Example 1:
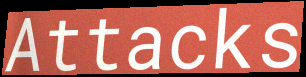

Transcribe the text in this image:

Attacks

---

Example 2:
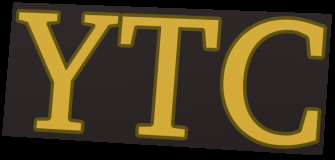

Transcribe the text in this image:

YTC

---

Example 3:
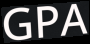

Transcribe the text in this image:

GPA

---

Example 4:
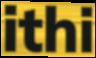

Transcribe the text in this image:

ithi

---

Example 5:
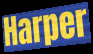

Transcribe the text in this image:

Harper